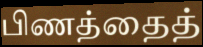
பிணத்தைத்